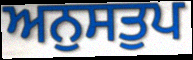
ਅਨੁਸਤੁਪ